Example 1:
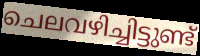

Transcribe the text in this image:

ചെലവഴിച്ചിട്ടുണ്ട്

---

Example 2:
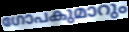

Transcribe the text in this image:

ഗോപകുമാറും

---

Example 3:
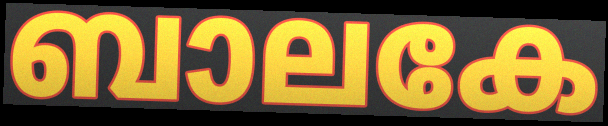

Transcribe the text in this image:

ബാലകേ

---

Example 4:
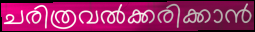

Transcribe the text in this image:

ചരിത്രവൽക്കരിക്കാൻ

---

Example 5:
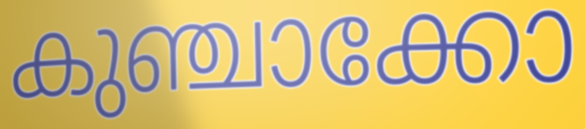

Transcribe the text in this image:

കുഞ്ചാക്കോ